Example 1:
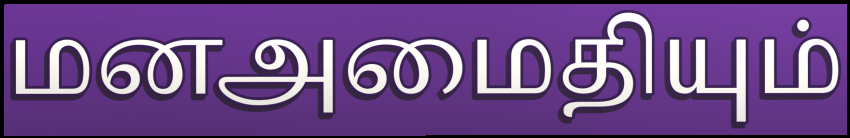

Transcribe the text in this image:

மனஅமைதியும்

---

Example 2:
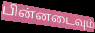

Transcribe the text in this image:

பின்னடைவும்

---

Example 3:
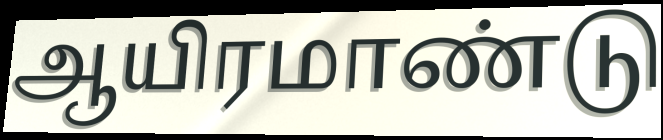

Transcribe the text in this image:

ஆயிரமாண்டு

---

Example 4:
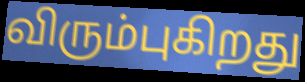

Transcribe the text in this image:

விரும்புகிறது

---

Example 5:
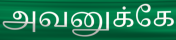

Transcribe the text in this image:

அவனுக்கே